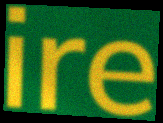
ire